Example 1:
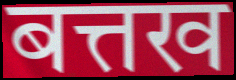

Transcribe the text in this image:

बत्तख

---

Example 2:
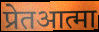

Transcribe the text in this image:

प्रेतआत्मा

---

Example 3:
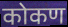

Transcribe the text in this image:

कोकण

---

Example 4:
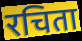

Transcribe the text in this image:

रचिता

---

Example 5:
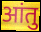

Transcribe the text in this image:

आंतु